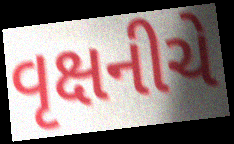
વૃક્ષનીચે